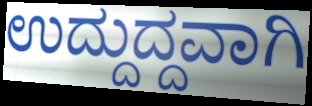
ಉದ್ದುದ್ದವಾಗಿ